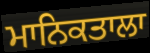
ਮਾਨਿਕਤਾਲਾ